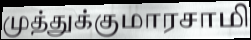
முத்துக்குமாரசாமி